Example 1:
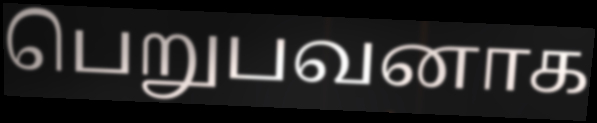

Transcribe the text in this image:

பெறுபவனாக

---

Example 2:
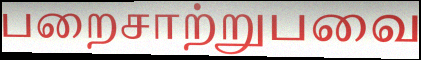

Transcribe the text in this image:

பறைசாற்றுபவை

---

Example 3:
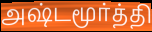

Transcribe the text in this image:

அஷ்டமூர்த்தி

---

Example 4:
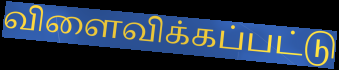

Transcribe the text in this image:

விளைவிக்கப்பட்டு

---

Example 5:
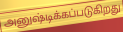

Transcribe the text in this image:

அனுஷ்டிக்கப்படுகிறது